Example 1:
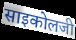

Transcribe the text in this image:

साइकोलजी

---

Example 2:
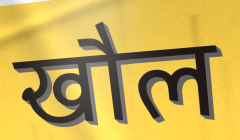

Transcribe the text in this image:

खौल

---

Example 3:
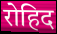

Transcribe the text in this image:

रोहिद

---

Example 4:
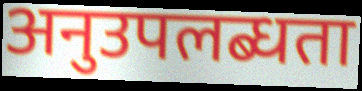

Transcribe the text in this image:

अनुउपलब्धता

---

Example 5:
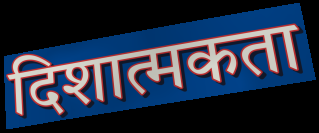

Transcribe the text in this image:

दिशात्मकता